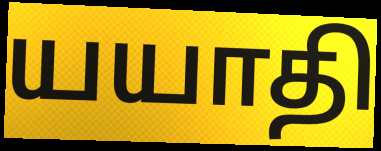
யயாதி